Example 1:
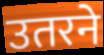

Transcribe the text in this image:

उतरने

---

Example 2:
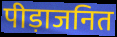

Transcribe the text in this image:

पीड़ाजनित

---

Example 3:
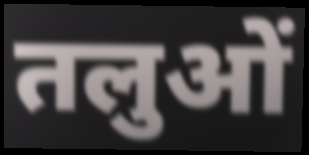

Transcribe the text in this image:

तलुओं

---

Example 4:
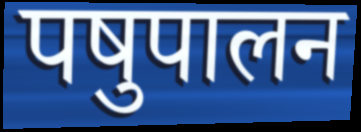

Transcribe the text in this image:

पषुपालन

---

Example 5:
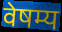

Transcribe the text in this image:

वेषम्य